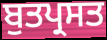
ਬੁਤਪ੍ਰਸਤ